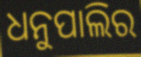
ଧନୁପାଲିର